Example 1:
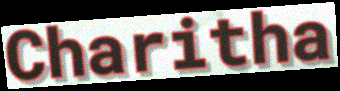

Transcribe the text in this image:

Charitha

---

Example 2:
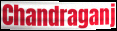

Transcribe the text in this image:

Chandraganj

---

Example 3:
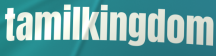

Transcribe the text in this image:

tamilkingdom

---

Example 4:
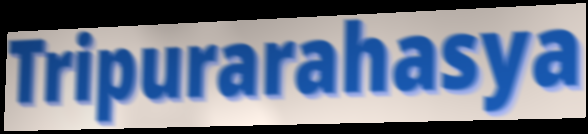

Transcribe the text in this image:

Tripurarahasya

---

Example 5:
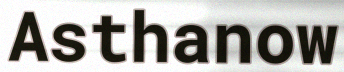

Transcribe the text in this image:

Asthanow